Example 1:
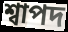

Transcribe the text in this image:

শ্বাপদ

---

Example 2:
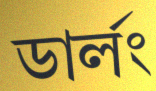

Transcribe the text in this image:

ডার্লং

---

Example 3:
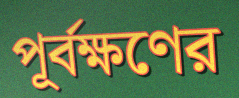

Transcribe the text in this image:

পূর্বক্ষণের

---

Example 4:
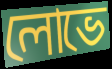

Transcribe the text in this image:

লোভে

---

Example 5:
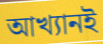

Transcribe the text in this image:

আখ্যানই